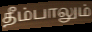
தீம்பாலும்